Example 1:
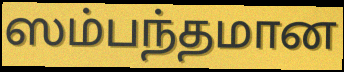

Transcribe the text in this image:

ஸம்பந்தமான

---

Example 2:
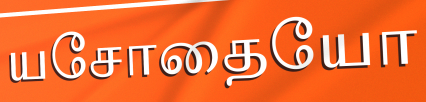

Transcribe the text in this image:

யசோதையோ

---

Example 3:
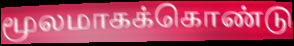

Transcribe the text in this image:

மூலமாகக்கொண்டு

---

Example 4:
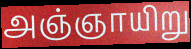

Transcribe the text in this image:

அஞ்ஞாயிறு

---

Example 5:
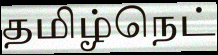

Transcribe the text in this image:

தமிழ்நெட்